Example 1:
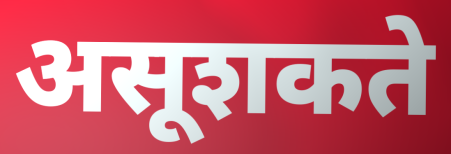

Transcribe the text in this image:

असूशकते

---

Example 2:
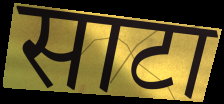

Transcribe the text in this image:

साटा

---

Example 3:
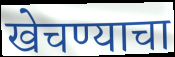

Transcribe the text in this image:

खेचण्याचा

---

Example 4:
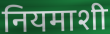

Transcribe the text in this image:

नियमाशी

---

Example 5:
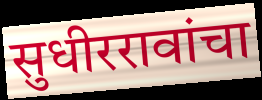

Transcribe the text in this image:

सुधीररावांचा